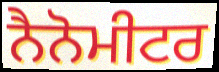
ਨੈਨੋਮੀਟਰ